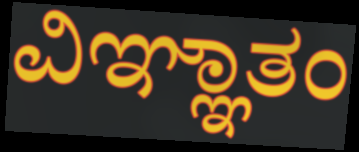
ವಿಞ್ಞಾತಂ